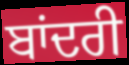
ਬਾਂਦਰੀ